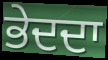
ਭੇਦਦਾ